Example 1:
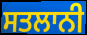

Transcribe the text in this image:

ਸਤਲਾਨੀ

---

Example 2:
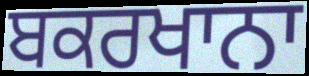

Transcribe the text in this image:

ਬਕਰਖਾਨਾ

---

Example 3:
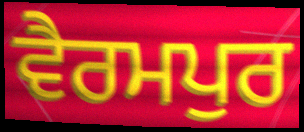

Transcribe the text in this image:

ਵੈਰਮਪੁਰ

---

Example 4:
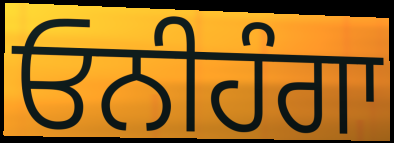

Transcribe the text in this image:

ਓਨੀਹੰਗਾ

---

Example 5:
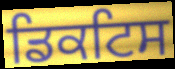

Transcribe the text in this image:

ਡਿਕਟਿਸ